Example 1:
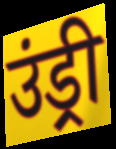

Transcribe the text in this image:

उंड्री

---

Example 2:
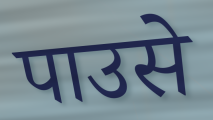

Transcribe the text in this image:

पाउसे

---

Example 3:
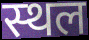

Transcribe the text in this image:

स्‍थल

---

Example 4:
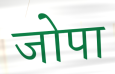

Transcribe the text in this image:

जोपा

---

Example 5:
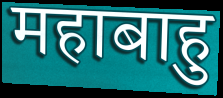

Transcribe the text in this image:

महाबाहु